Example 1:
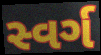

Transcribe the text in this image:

સ્વર્ગ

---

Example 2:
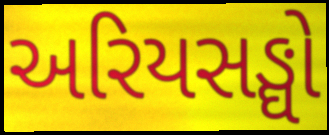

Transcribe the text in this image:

અરિયસઙ્ઘો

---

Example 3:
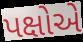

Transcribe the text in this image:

પક્ષોએ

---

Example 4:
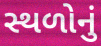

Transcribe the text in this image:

સ્થળોનું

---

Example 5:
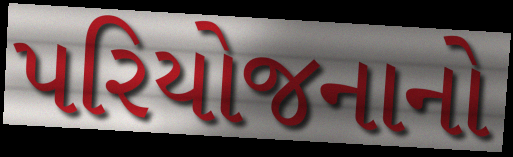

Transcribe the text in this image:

પરિયોજનાનો